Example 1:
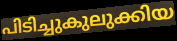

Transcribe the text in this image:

പിടിച്ചുകുലുക്കിയ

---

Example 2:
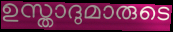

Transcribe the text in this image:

ഉസ്താദുമാരുടെ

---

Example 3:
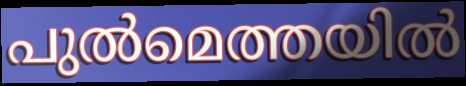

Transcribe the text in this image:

പുൽമെത്തയിൽ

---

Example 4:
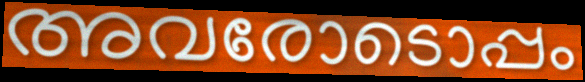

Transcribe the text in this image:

അവരോടൊപ്പം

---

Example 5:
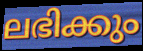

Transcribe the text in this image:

ലഭിക്കും